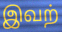
இவற்